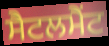
ਸੈਟਲਮੈਂਟ